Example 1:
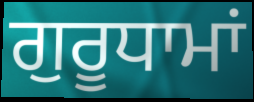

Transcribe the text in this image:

ਗੁਰੂਧਾਮਾਂ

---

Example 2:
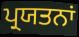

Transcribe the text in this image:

ਪ੍ਰਯਤਨਾਂ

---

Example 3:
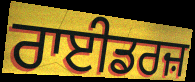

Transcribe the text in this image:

ਰਾਈਡਰਜ਼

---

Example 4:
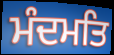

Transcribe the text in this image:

ਮੰਦਮਤਿ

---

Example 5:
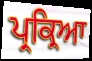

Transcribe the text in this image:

ਪ੍ਰਕ੍ਰਿਆ